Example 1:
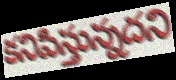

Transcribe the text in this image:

కనిపిస్తున్నదని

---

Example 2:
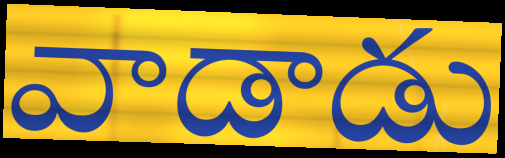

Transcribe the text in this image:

వాడాడు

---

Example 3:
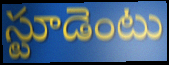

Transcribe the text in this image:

స్టూడెంటు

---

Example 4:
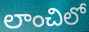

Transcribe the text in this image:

లాంచిలో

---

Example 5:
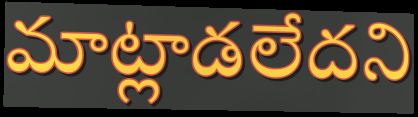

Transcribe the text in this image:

మాట్లాడలేదని